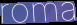
roma